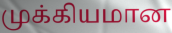
முக்கியமான